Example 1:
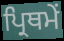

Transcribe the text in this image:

ਪ੍ਰਿਥਮੇਂ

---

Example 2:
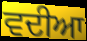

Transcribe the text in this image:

ਵਦੀਆ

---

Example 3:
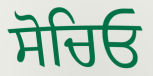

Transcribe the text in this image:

ਸੋਚਿਓ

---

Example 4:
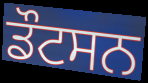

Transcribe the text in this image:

ਡੌਟਸਨ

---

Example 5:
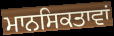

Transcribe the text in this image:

ਮਾਨਸਿਕਤਾਵਾਂ